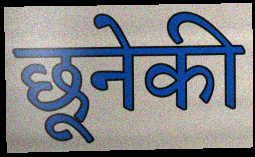
छूनेकी